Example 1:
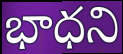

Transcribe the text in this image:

భాధని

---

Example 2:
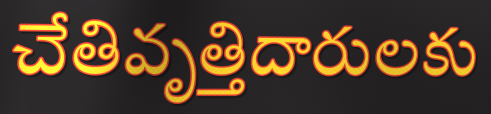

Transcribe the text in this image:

చేతివృత్తిదారులకు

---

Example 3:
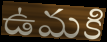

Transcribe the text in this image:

ఉమకి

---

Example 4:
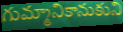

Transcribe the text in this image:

గుమ్మానికానుకుని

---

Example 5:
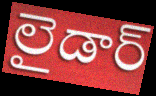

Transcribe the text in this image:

లైడార్